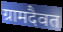
ग्रामदैवत